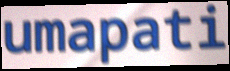
umapati